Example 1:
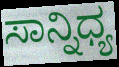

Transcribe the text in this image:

ಸಾನ್ನಿಧ್ಯ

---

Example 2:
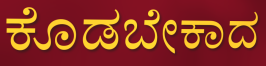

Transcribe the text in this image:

ಕೊಡಬೇಕಾದ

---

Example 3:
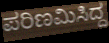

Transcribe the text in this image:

ಪರಿಣಮಿಸಿದ್ದ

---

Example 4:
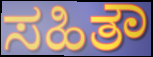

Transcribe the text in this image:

ಸಹಿತೌ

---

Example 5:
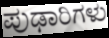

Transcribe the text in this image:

ಪುಢಾರಿಗಳು